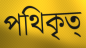
পথিকৃত্